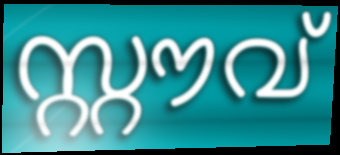
സ്റ്റൗവ്